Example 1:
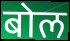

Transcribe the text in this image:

बोल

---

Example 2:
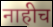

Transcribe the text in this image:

नाहीच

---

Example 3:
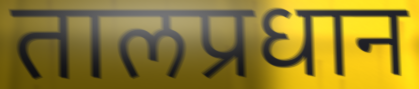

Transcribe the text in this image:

तालप्रधान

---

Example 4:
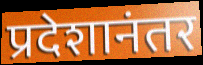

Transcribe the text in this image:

प्रदेशानंतर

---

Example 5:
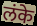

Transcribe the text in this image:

लंके